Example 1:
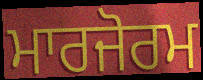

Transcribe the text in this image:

ਮਾਰਜੋਰਮ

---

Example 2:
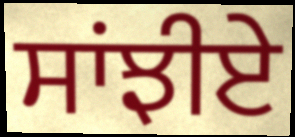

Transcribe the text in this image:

ਸਾਂਝੀਏ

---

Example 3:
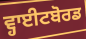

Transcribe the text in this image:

ਵ੍ਹਾਈਟਬੋਰਡ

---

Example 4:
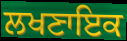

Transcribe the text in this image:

ਲਖਣਾਇਕ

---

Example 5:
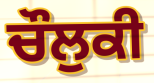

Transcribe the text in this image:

ਚੌਲੁਕੀ